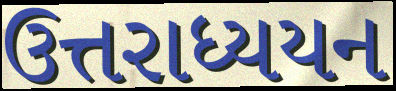
ઉત્તરાધ્યયન